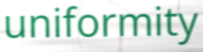
uniformity